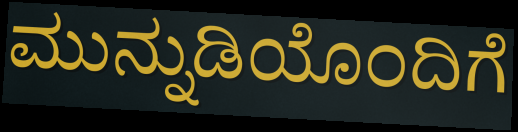
ಮುನ್ನುಡಿಯೊಂದಿಗೆ